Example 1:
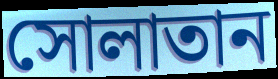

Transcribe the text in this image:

সোলাতান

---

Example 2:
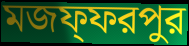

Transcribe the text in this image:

মজফ্ফরপুর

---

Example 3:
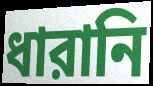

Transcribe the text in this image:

ধারানি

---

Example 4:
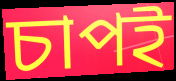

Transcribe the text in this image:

চাপই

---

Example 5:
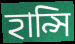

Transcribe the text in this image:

হান্সি